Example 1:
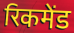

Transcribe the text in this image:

रिकमेंड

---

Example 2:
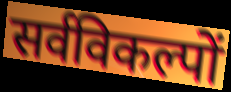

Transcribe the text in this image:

सर्वविकल्पों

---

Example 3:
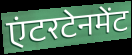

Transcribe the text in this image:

एंटरटेनमेंट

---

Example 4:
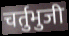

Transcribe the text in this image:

चर्तुभुजी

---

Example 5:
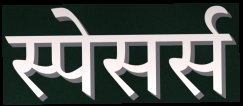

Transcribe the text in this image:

स्पेसर्स